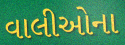
વાલીઓના